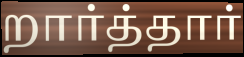
றார்த்தார்